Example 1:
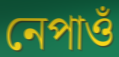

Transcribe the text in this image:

নেপাওঁ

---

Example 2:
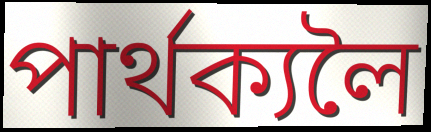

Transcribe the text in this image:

পাৰ্থক্যলৈ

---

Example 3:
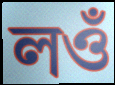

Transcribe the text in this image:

লওঁ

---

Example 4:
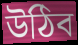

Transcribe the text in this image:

উঠিব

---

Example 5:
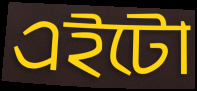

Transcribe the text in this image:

এইটো